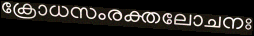
ക്രോധസംരക്തലോചനഃ